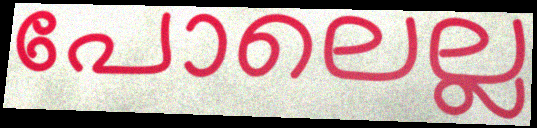
പോലെല്ല